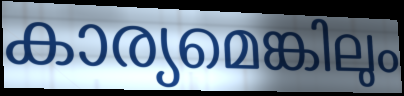
കാര്യമെങ്കിലും